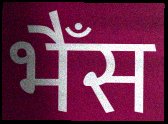
भैँस